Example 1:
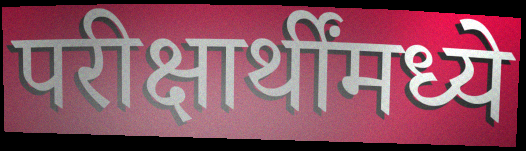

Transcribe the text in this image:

परीक्षार्थींमध्ये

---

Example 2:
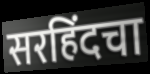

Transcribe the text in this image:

सरहिंदचा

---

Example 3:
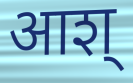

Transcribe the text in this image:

आश्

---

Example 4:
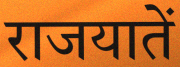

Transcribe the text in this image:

राजयातें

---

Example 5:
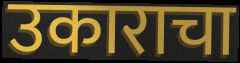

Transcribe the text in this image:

उकाराचा